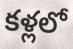
కళ్లలో